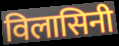
विलासिनी